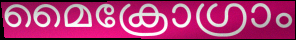
മൈക്രോഗ്രാം